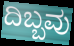
ದಿಬ್ಬವು